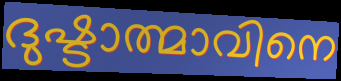
ദുഷ്ടാത്മാവിനെ